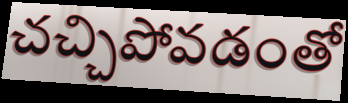
చచ్చిపోవడంతో